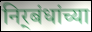
निर्बंधांच्या